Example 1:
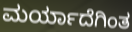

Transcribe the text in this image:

ಮರ್ಯಾದೆಗಿಂತ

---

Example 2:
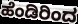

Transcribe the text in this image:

ಹೆಂಡಿರಿಂದ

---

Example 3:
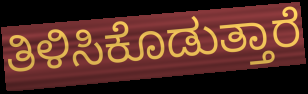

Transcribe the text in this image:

ತಿಳಿಸಿಕೊಡುತ್ತಾರೆ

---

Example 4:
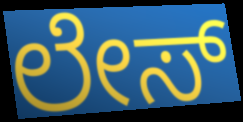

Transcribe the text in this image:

ಲೇಸ್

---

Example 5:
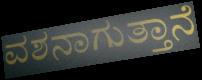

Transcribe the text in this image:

ವಶನಾಗುತ್ತಾನೆ